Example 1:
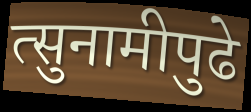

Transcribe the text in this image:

त्सुनामीपुढे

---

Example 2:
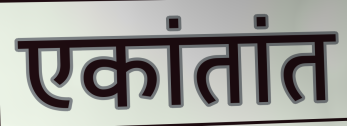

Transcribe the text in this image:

एकांतांत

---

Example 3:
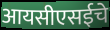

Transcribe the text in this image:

आयसीएसईचे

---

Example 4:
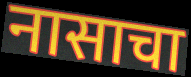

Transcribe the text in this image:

नासाचा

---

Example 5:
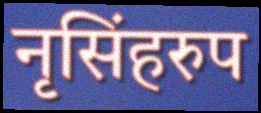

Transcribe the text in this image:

नृसिंहरुप